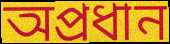
অপ্ৰধান